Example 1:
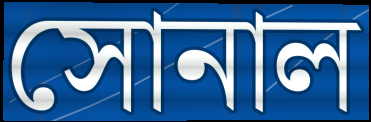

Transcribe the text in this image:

সোনাল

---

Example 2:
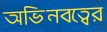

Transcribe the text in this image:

অভিনবত্বের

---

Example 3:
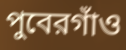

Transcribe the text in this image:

পুবেরগাঁও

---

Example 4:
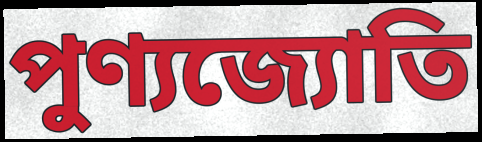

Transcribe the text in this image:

পুণ্যজ্যোতি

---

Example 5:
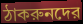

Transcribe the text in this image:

ঠাকরুনদের